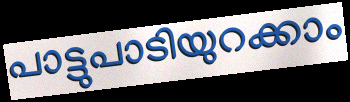
പാട്ടുപാടിയുറക്കാം